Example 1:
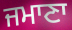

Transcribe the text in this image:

ਜਮਾਣਾ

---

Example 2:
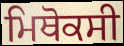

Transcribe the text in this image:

ਮਿਥੋਕਸੀ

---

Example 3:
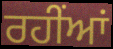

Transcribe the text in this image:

ਰਹੀਂਆਂ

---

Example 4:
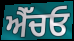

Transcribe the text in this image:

ਐੱਚਓ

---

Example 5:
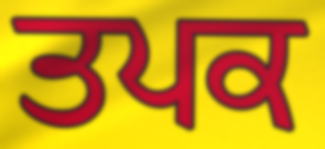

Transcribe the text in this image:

ਤਪਕ